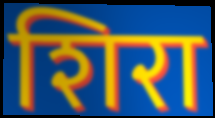
शिरा